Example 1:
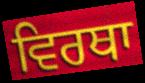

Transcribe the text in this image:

ਵਿਰਥਾ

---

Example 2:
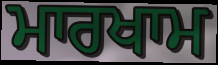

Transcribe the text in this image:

ਮਾਰਖਾਮ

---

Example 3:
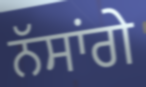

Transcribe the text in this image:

ਨੱਸਾਂਗੇ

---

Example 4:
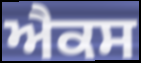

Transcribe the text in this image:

ਐਕਸ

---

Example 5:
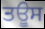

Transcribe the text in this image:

ਤਊਸ